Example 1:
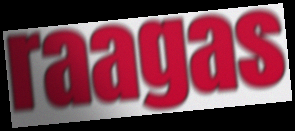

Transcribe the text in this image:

raagas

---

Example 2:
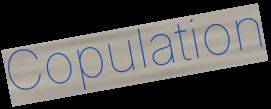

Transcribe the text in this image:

Copulation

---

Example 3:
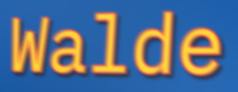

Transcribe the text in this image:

Walde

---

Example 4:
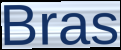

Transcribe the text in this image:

Bras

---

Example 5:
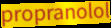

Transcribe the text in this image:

propranolol